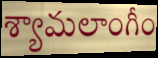
శ్యామలాంగీం